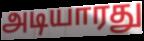
அடியாரது